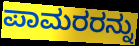
ಪಾಮರರನ್ನು